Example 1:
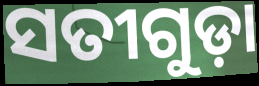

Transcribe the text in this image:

ସତୀଗୁଡ଼ା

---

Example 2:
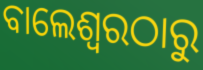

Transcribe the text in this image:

ବାଲେଶ୍ବରଠାରୁ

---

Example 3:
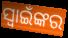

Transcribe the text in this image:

ସ୍ଵାଇଁଙ୍କର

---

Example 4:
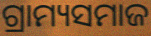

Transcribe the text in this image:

ଗ୍ରାମ୍ୟସମାଜ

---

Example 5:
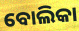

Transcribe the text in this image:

ବୋଲିକା